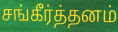
சங்கீர்த்தனம்